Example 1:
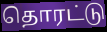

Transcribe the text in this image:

தொரட்டு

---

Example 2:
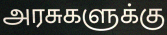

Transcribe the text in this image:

அரசுகளுக்கு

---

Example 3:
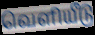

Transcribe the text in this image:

வெளியீடு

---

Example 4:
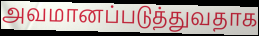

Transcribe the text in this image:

அவமானப்படுத்துவதாக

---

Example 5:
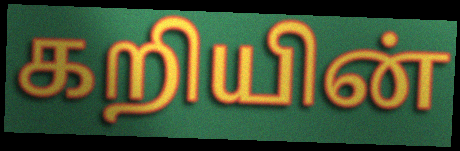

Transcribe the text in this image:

கறியின்